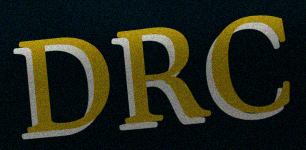
DRC